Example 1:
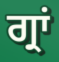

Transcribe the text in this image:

ਗ੍ਰਾਂ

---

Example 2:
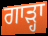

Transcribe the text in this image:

ਗਾੜ੍ਹਾ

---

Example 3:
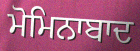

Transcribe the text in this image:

ਮੋਮਿਨਾਬਾਦ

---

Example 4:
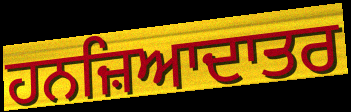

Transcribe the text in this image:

ਹਨਜ਼ਿਆਦਾਤਰ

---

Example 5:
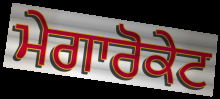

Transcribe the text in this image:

ਮੇਗਾਰੋਕੇਟ